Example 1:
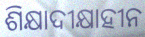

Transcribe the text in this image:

ଶିକ୍ଷାଦୀକ୍ଷାହୀନ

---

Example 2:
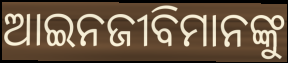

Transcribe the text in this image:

ଆଇନଜୀବିମାନଙ୍କୁ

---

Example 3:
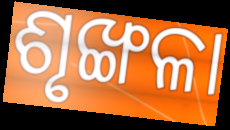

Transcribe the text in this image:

ଶୃଙ୍ଖଳା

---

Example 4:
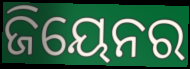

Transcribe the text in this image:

ଜିୟେନର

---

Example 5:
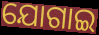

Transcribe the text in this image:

ଯୋଗାଇ